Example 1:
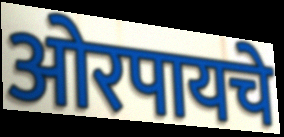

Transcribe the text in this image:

ओरपायचे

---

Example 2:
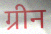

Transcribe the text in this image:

ग्रीन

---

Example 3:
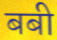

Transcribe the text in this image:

बबी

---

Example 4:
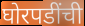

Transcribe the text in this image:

घोरपडींची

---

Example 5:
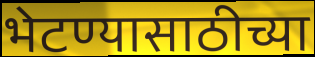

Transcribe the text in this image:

भेटण्यासाठीच्या